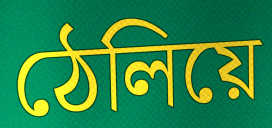
ঠেলিয়ে